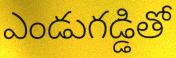
ఎండుగడ్డితో